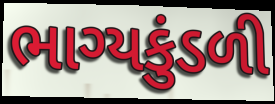
ભાગ્યકુંડળી